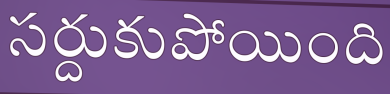
సర్దుకుపోయింది